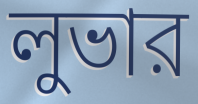
লুভার